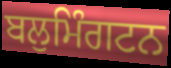
ਬਲੁਮਿੰਗਟਨ